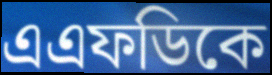
এএফডিকে